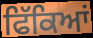
ਫਿੱਕਿਆਂ